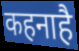
कहनाहै